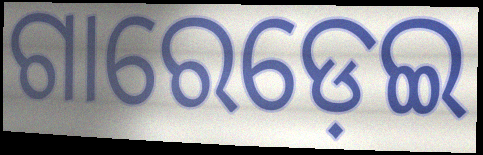
ଗାରେଡ଼େଇ